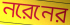
নরেনের